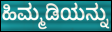
ಹಿಮ್ಮಡಿಯನ್ನು